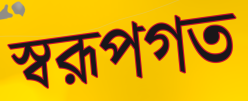
স্বরূপগত